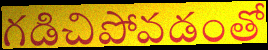
గడిచిపోవడంతో